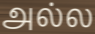
அல்ல